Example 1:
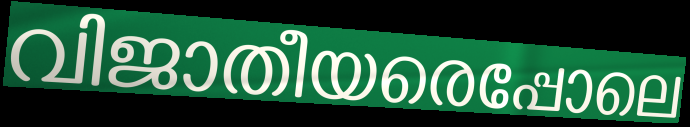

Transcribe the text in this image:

വിജാതീയരെപ്പോലെ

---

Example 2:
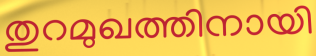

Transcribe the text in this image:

തുറമുഖത്തിനായി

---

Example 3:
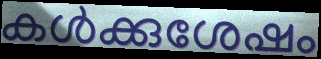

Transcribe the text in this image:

കൾക്കുശേഷം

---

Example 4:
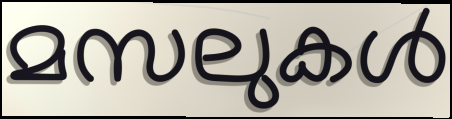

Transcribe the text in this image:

മസലുകൾ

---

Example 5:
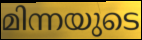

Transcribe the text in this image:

മിന്നയുടെ